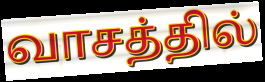
வாசத்தில்